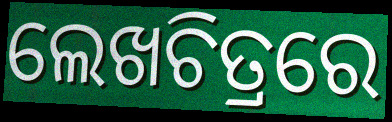
ଲେଖଚିତ୍ରରେ